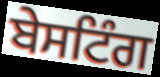
ਬੇਸਟਿੰਗ